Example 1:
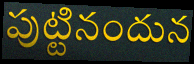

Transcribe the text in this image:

పుట్టినందున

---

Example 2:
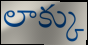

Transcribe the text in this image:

లాక్కు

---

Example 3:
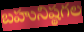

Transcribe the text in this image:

బహునిష్ఠగల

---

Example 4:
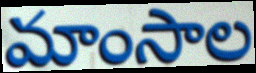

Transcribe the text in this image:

మాంసాల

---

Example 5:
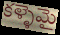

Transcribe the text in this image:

కళ్ళెమై